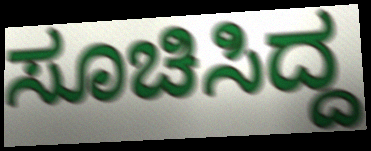
ಸೂಚಿಸಿದ್ದ